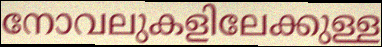
നോവലുകളിലേക്കുള്ള